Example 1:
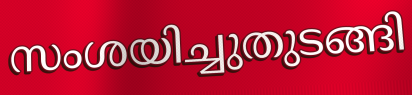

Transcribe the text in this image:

സംശയിച്ചുതുടങ്ങി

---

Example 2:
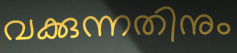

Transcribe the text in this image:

വക്കുന്നതിനും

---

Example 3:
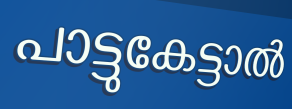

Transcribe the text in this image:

പാട്ടുകേട്ടാൽ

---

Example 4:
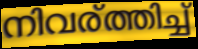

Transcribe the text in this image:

നിവര്ത്തിച്ച്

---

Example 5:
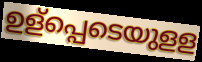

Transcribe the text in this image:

ഉള്പ്പെടെയുളള